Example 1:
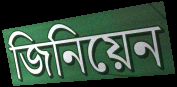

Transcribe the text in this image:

জিনিয়েন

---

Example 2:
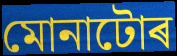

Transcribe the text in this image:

মোনাটোৰ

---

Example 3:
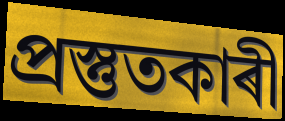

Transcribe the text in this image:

প্ৰস্তুতকাৰী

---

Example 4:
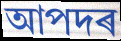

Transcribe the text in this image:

আপদৰ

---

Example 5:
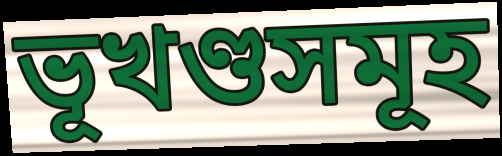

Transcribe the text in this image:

ভূখণ্ডসমূহ